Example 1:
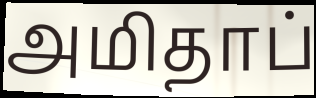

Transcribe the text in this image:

அமிதாப்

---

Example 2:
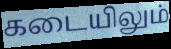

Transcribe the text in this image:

கடையிலும்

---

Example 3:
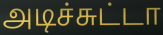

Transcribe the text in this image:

அடிச்சுட்டா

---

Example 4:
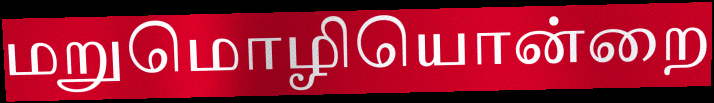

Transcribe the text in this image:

மறுமொழியொன்றை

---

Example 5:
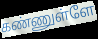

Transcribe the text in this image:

கண்ணுள்ளே